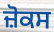
ਜ਼ੋਕਸ